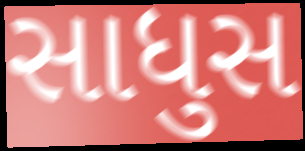
સાધુસ